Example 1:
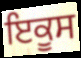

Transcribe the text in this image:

ਇਕੂਸ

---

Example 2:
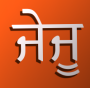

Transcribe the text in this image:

ਜੇਜੂ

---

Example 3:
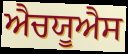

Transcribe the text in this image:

ਐਚਯੂਐਸ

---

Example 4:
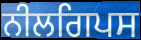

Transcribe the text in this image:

ਨੀਲਗਿਪਸ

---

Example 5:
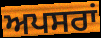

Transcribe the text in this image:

ਅਪਸਰਾਂ